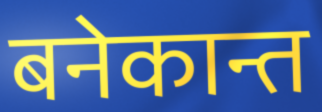
बनेकान्त